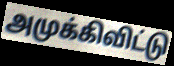
அமுக்கிவிட்டு